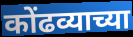
कोंढव्याच्या